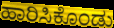
ಹಾರಿಸಿಕೊಂಡು